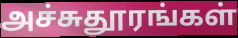
அச்சுதூரங்கள்